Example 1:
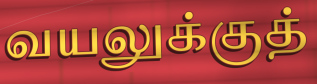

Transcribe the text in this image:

வயலுக்குத்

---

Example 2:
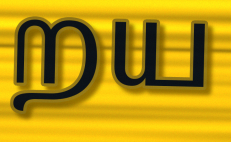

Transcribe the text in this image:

றய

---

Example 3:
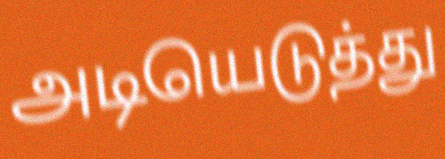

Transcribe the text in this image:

அடியெடுத்து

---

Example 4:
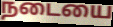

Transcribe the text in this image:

நடையை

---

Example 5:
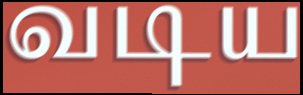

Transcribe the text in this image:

வடிய